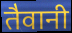
तैवानी